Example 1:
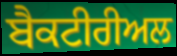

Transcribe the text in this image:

ਬੈਕਟੀਰੀਅਲ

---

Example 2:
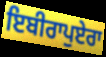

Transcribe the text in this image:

ਇਬੀਰਾਪੁਏਰਾ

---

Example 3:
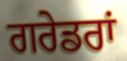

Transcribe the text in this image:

ਗਰੇਡਰਾਂ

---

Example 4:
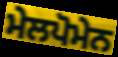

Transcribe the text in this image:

ਮੇਲਪੋਮੇਨ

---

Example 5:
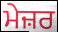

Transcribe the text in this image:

ਮੇਜ਼ਰ